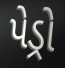
પેડ્રો